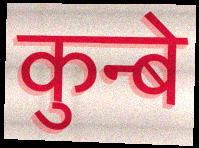
कुन्बे